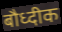
बौध्दीक